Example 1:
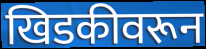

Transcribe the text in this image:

खिडकीवरून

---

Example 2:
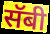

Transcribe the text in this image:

सॅबी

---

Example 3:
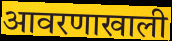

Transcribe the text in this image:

आवरणाखाली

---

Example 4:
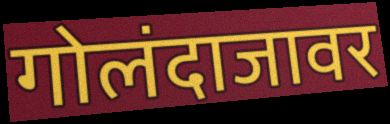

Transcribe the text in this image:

गोलंदाजावर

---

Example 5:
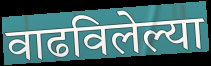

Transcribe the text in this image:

वाढविलेल्या